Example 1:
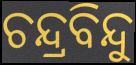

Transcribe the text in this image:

ଚନ୍ଦ୍ରବିନ୍ଦୁ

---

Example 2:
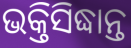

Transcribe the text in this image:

ଭକ୍ତିସିଦ୍ଧାନ୍ତ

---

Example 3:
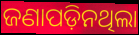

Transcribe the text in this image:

ଜଣାପଡ଼ିନଥିଲା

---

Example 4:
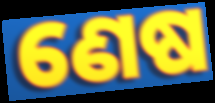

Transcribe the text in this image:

ଣେଷ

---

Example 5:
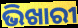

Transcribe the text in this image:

ଭିଖାରୀ